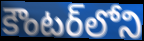
కౌంటర్‌లోని